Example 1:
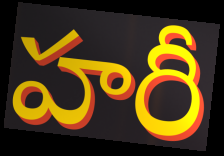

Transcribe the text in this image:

హరీ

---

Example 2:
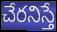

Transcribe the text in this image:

చేరనిస్తే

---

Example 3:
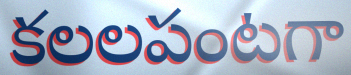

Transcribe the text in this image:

కలలపంటగా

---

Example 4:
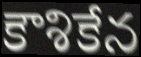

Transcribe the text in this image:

కౌశికేన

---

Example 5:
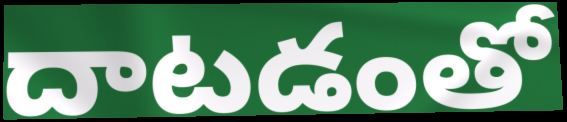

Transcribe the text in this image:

దాటడంతో